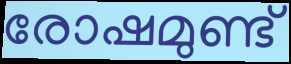
രോഷമുണ്ട്